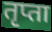
तृप्ता